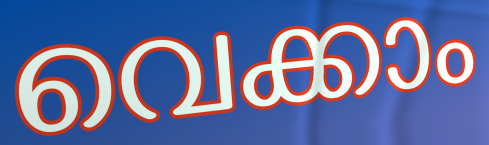
വെക്കാം